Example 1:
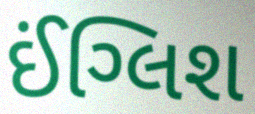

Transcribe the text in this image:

ઈંગ્લિશ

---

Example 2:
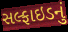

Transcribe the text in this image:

સલ્ફાઇડનું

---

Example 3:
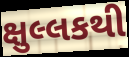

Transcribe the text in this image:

ક્ષુલ્લકથી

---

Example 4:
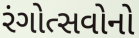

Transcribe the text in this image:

રંગોત્સવોનો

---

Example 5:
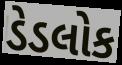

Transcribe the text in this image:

ડેડલોક